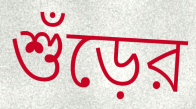
শুঁড়ের